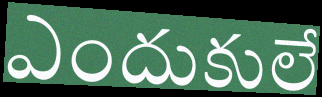
ఎందుకులే